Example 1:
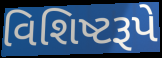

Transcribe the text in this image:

વિશિષ્ટરૂપે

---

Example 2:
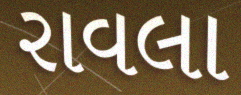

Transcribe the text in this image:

રાવલા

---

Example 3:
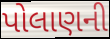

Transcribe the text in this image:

પોલાણની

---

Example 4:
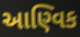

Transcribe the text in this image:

આણ્વિક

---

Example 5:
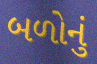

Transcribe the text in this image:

બળોનું